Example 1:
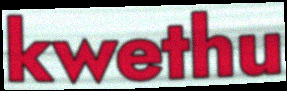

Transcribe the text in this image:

kwethu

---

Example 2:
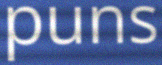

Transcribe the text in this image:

puns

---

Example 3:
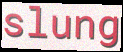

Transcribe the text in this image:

slung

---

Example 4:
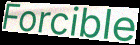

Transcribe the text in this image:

Forcible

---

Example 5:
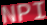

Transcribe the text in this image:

NPI